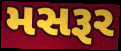
મસરૂર